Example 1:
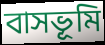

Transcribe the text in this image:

বাসভূমি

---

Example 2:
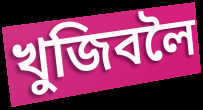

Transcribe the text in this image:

খুজিবলৈ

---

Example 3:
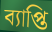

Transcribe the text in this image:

ব্যাপ্তি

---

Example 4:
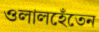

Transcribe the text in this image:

ওলালহেঁতেন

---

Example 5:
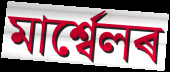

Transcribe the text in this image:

মাৰ্শ্বেলৰ